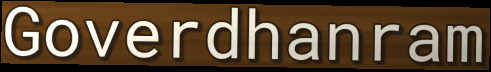
Goverdhanram